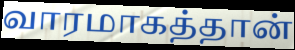
வாரமாகத்தான்